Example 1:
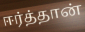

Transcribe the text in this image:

ஈர்த்தான்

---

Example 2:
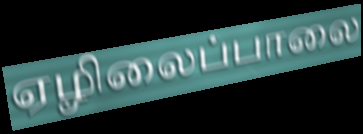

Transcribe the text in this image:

ஏழிலைப்பாலை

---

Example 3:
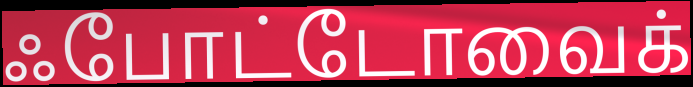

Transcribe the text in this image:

ஃபோட்டோவைக்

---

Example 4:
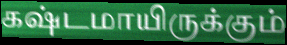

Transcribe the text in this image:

கஷ்டமாயிருக்கும்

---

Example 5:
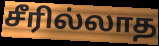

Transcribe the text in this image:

சீரில்லாத